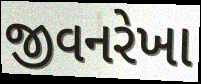
જીવનરેખા